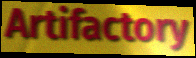
Artifactory